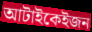
আটাইকেইজন